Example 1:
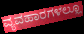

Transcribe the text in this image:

ವ್ಯವಹಾರಗಳಲ್ಲೂ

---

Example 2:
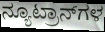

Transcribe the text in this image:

ನ್ಯೂಟ್ರಾನ್‌ಗಳ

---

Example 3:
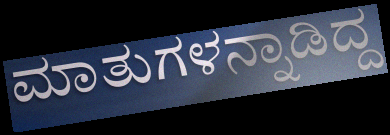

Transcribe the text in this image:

ಮಾತುಗಳನ್ನಾಡಿದ್ದ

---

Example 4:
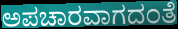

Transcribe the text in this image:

ಅಪಚಾರವಾಗದಂತೆ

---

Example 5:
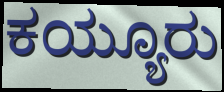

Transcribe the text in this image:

ಕಯ್ಯೂರು